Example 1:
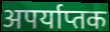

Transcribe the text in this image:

अपर्याप्तक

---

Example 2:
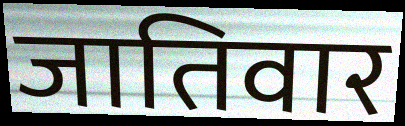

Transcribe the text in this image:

जातिवार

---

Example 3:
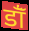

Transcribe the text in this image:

डॉँ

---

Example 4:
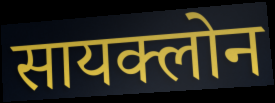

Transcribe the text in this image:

सायक्लोन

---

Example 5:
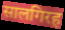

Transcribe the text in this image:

सालगिरह